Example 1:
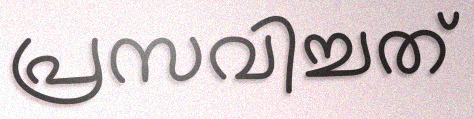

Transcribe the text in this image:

പ്രസവിച്ചത്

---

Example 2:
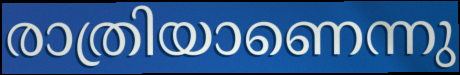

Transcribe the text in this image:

രാത്രിയാണെന്നു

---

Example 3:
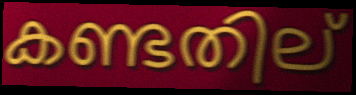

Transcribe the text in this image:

കണ്ടതില്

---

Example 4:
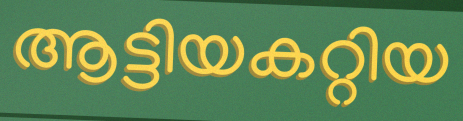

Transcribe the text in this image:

ആട്ടിയകറ്റിയ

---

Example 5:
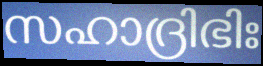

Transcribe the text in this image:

സഹാദ്രിഭിഃ